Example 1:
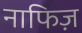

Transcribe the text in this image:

नाफिज़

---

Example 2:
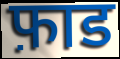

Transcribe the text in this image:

फ़ाड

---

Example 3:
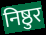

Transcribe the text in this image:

निष्ठुर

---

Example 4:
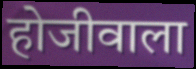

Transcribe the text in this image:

होजीवाला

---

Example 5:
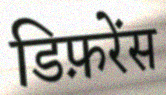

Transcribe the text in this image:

डिफ़रेंस